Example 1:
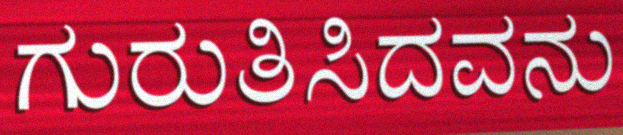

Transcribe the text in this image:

ಗುರುತಿಸಿದವನು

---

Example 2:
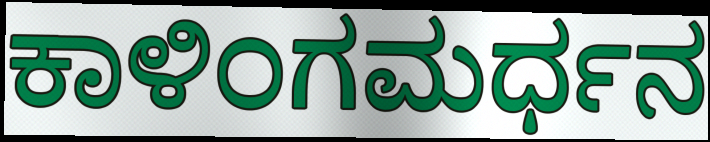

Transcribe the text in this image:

ಕಾಳಿಂಗಮರ್ಧನ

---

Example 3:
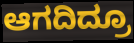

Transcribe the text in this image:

ಆಗದಿದ್ರೂ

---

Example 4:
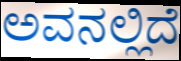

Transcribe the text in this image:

ಅವನಲ್ಲಿದೆ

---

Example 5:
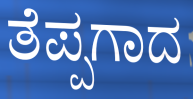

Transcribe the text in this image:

ತೆಪ್ಪಗಾದ